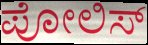
ಪೋಲಿಸ್